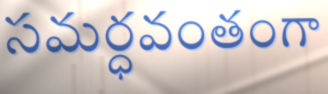
సమర్ధవంతంగా